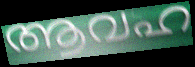
ആവഹ